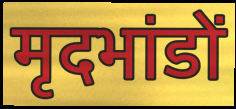
मृदभांडों